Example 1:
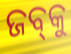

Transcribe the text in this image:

ଜବ୍‍କୁ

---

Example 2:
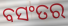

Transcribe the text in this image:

ବସଂତର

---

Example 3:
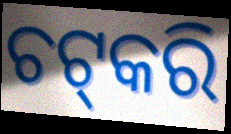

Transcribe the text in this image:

ଚଟ୍‌କରି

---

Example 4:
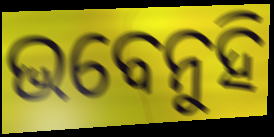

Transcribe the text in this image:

ଭବେନୁହି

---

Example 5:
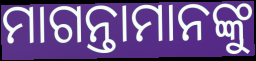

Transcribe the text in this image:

ମାଗନ୍ତାମାନଙ୍କୁ